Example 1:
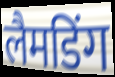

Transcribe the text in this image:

लैमडिंग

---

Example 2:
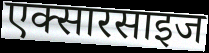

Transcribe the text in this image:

एक्सारसाइज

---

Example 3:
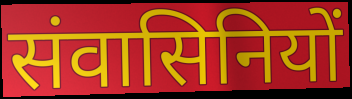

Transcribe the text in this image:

संवासिनियों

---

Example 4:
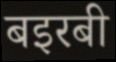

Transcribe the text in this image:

बइरबी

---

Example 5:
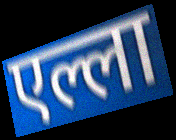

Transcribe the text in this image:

एल्ला